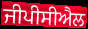
ਜੀਪੀਸੀਐਲ